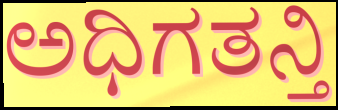
ಅಧಿಗತನ್ತಿ